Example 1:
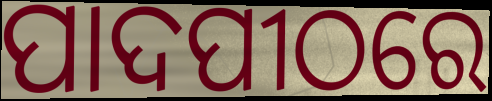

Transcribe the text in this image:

ପାଦପୀଠରେ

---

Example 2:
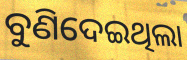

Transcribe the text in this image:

ବୁଣିଦେଇଥିଲା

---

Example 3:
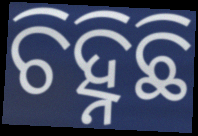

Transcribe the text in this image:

ଚିହ୍ନିଛି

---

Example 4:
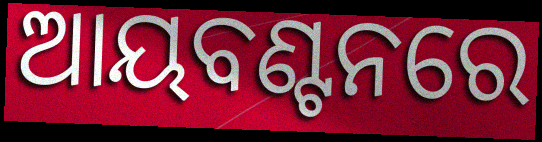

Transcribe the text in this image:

ଆୟବଣ୍ଟନରେ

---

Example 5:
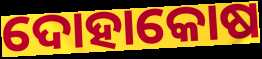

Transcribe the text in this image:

ଦୋହାକୋଷ